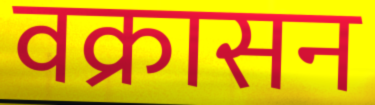
वक्रासन